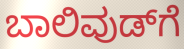
ಬಾಲಿವುಡ್‌ಗೆ